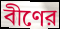
বীণের